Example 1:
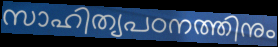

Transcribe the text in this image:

സാഹിത്യപഠനത്തിനും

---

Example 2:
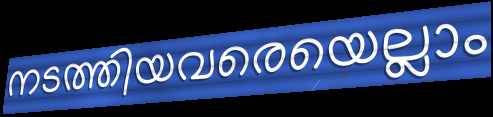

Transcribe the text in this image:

നടത്തിയവരെയെല്ലാം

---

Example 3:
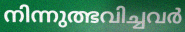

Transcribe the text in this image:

നിന്നുത്ഭവിച്ചവർ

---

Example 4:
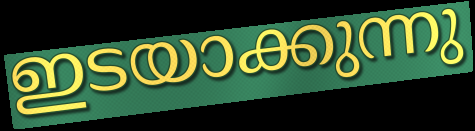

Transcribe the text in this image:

ഇടയാക്കുന്നു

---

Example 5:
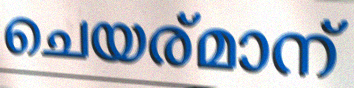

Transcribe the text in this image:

ചെയര്മാന്